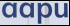
aapu